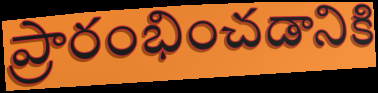
ప్రారంభించడానికి